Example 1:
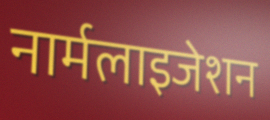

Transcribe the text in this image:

नार्मलाइजेशन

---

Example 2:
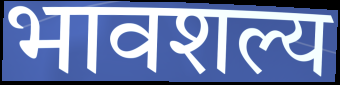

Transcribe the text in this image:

भावशल्य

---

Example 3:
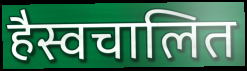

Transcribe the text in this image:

हैस्वचालित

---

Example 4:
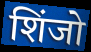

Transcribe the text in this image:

शिंजो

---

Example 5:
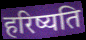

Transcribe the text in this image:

हरिष्यति